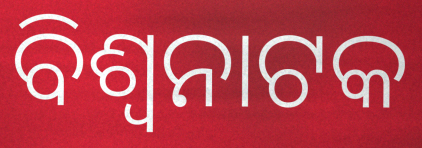
ବିଶ୍ୱନାଟକ